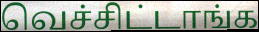
வெச்சிட்டாங்க